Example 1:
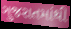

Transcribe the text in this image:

ગુજરાતમાંથી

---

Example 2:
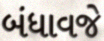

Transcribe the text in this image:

બંધાવજે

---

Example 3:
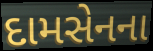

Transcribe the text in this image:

દામસેનના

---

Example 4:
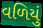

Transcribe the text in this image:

વળિયું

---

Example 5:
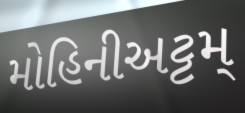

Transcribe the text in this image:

મોહિનીઅટ્ટમ્